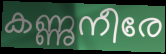
കണ്ണുനീരേ